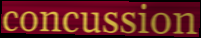
concussion